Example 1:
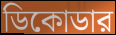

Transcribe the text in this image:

ডিকোডার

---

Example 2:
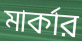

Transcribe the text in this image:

মার্কার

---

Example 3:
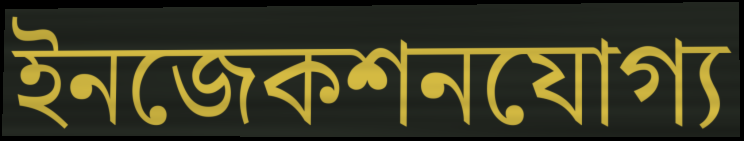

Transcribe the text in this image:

ইনজেকশনযোগ্য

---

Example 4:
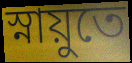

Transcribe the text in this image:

স্নায়ুতে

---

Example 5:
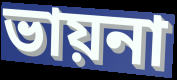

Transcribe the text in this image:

ভায়না